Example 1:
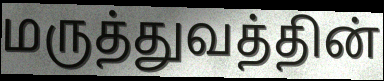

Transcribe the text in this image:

மருத்துவத்தின்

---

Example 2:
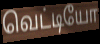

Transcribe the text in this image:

வெட்டியோ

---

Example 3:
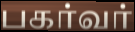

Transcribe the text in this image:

பகர்வர்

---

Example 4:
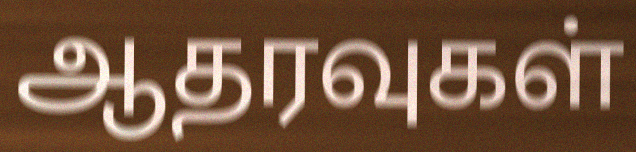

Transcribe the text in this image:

ஆதரவுகள்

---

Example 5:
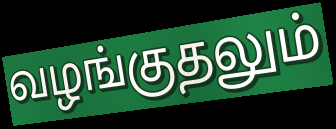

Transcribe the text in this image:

வழங்குதலும்